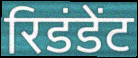
रिडंडेंट